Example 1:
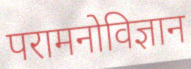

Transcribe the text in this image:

परामनोविज्ञान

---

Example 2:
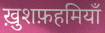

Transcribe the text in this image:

ख़ुशफ़हमियाँ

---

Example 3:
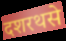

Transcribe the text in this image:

दशरथसे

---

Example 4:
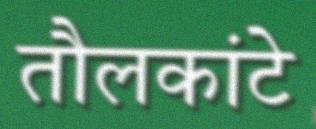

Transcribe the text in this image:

तौलकांटे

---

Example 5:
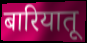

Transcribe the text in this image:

बारियातू